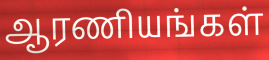
ஆரணியங்கள்